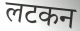
लटकन